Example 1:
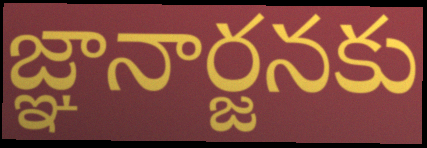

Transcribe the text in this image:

జ్ఞానార్జనకు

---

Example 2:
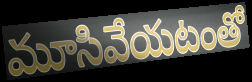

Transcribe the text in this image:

మూసివేయటంతో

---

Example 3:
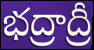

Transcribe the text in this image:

భద్రాద్రీ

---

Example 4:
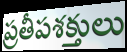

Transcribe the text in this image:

ప్రతీపశక్తులు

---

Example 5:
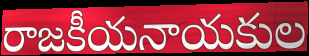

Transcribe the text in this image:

రాజకీయనాయకుల